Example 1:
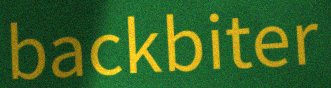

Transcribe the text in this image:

backbiter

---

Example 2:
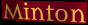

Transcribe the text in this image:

Minton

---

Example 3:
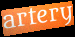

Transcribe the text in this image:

artery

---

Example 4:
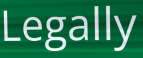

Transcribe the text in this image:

Legally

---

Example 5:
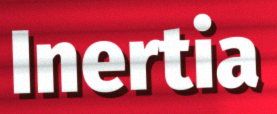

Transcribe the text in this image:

Inertia